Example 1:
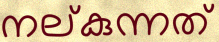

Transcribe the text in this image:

നല്കുന്നത്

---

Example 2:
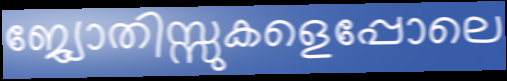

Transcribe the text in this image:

ജ്യോതിസ്സുകളെപ്പോലെ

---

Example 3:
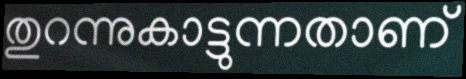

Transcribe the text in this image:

തുറന്നുകാട്ടുന്നതാണ്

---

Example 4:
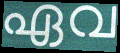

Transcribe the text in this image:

ഏവ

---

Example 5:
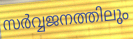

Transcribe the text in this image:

സർവ്വജനത്തിലും